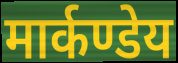
मार्कण्डेय